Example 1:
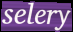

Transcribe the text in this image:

selery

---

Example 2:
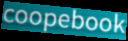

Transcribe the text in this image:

coopebook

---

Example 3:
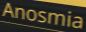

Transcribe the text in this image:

Anosmia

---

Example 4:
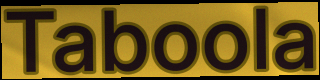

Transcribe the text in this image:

Taboola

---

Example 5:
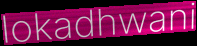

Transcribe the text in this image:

lokadhwani